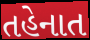
તહેનાત